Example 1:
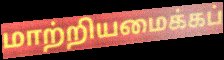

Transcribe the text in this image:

மாற்றியமைக்கப்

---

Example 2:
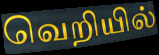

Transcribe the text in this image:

வெறியில்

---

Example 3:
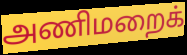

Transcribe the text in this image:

அணிமறைக்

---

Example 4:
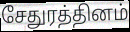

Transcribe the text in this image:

சேதுரத்தினம்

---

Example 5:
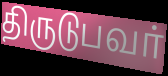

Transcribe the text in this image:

திருடுபவர்